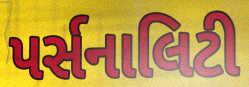
પર્સનાલિટી